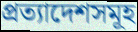
প্রত্যাদেশসমূহ